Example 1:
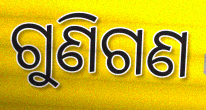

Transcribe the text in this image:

ଗୁଣିଗଣ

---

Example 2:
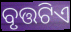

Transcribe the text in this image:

ବୃତ୍ତଟିଏ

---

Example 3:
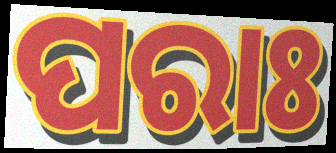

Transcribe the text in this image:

ପରାଃ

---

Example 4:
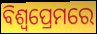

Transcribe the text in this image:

ବିଶ୍ୱପ୍ରେମରେ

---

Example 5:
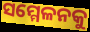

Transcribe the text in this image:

ସମ୍ମେଳନକୁ